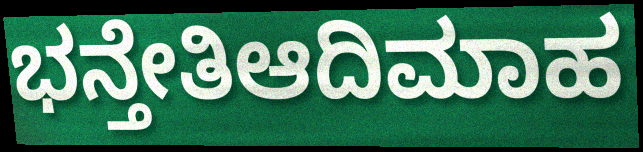
ಭನ್ತೇತಿಆದಿಮಾಹ